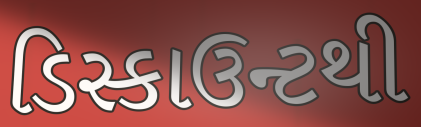
ડિસ્કાઉન્ટથી